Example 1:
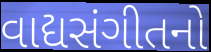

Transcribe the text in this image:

વાદ્યસંગીતનો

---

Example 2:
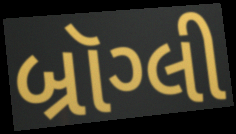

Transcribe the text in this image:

બ્રૉગ્લી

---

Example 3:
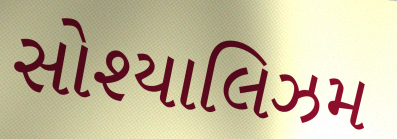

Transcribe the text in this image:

સોશ્યાલિઝમ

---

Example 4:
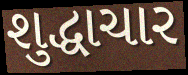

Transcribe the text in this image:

શુદ્ધાચાર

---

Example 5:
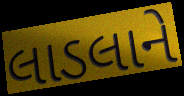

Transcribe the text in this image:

લાડલાને